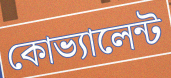
কোভ্যালেন্ট